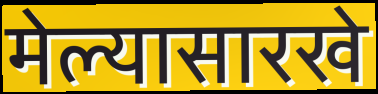
मेल्यासारखे